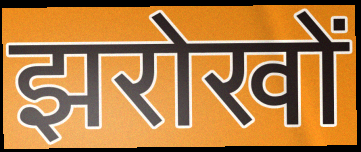
झरोखों